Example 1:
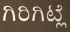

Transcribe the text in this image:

ಗಿರಿಗಿಟ್ಲೆ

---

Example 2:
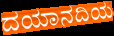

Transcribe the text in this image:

ದಯಾನದಿಯ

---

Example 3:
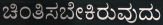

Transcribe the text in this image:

ಚಿಂತಿಸಬೇಕಿರುವುದು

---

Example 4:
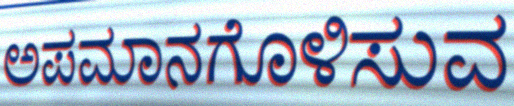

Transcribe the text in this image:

ಅಪಮಾನಗೊಳಿಸುವ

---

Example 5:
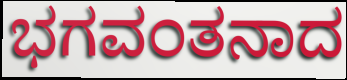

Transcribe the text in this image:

ಭಗವಂತನಾದ